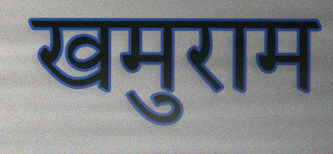
खमुराम